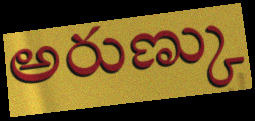
అరుణ్కు